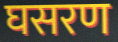
घसरण